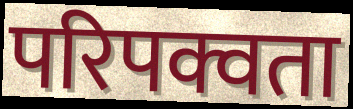
परिपक्‍वता